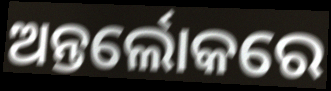
ଅନ୍ତର୍ଲୋକରେ